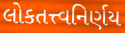
લોકતત્ત્વનિર્ણય